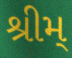
શ્રીમ્